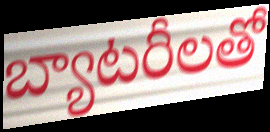
బ్యాటరీలతో